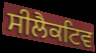
ਸੀਲੈਕਟਿਵ